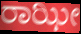
ರಾಝೀ